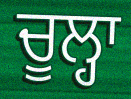
ਚੂਲ੍ਹਾ